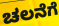
ಚಲನೆಗೆ